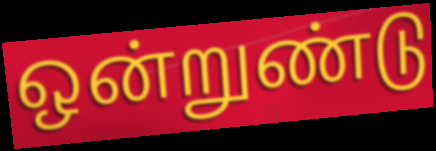
ஒன்றுண்டு